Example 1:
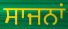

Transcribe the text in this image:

ਸਾਜਨਾਂ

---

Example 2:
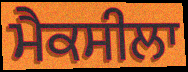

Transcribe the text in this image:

ਮੈਕਸੀਲਾ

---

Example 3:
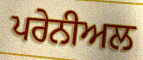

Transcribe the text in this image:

ਪਰੇਨੀਅਲ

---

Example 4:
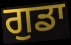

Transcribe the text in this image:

ਗੁਡਾ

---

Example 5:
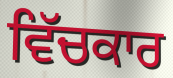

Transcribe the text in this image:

ਵਿੱਚਕਾਰ